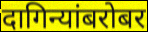
दागिन्यांबरोबर